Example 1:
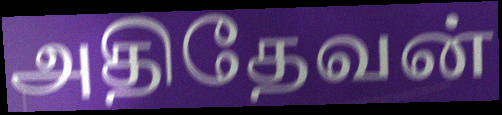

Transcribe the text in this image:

அதிதேவன்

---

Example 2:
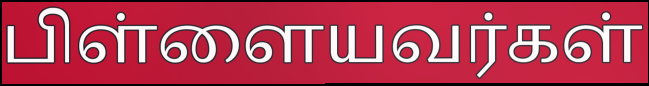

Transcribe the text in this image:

பிள்ளையவர்கள்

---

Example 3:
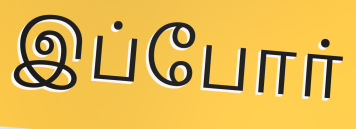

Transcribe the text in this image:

இப்போர்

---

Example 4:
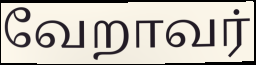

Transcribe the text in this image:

வேறாவர்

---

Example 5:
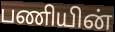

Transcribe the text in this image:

பணியின்